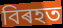
বিৰহত